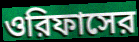
ওরিফাসের